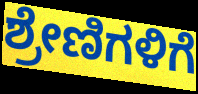
ಶ್ರೇಣಿಗಳಿಗೆ